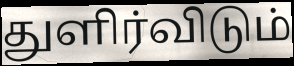
துளிர்விடும்